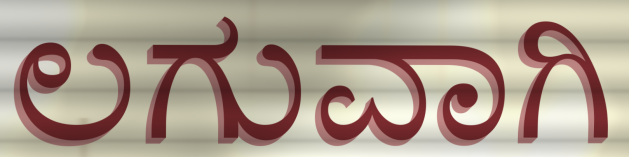
ಲಗುವಾಗಿ